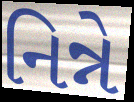
નિન્ને